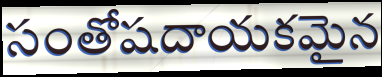
సంతోషదాయకమైన